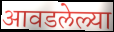
आवडलेल्या